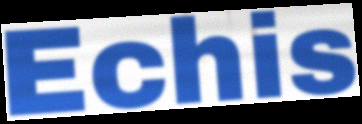
Echis